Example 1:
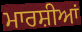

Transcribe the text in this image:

ਮਾਰਸ਼ੀਆਂ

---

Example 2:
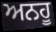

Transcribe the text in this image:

ਅਨਹੂ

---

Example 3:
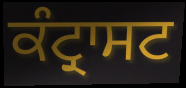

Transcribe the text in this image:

ਕੰਟ੍ਰਾਸਟ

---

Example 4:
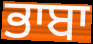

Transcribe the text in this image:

ਭਾਬਾ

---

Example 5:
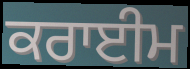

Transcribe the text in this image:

ਕਰਾਈਮ